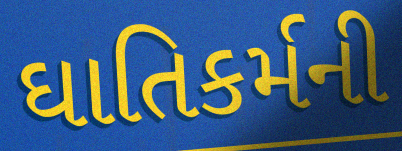
ઘાતિકર્મની